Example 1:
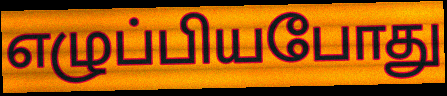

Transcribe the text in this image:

எழுப்பியபோது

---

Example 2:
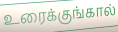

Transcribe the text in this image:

உரைக்குங்கால்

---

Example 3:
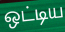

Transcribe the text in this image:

ஒட்டிய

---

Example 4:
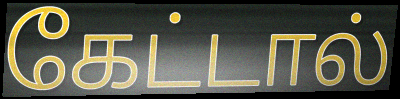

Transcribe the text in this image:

கேட்டால்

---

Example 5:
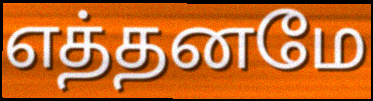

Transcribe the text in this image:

எத்தனமே